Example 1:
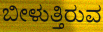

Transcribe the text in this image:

ಬೀಳುತ್ತಿರುವ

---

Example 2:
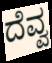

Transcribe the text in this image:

ದೆವ್ವ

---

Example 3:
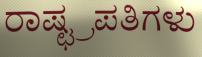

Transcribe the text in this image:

ರಾಷ್ಟ್ರಪತಿಗಳು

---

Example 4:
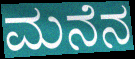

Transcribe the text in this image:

ಮನೆನ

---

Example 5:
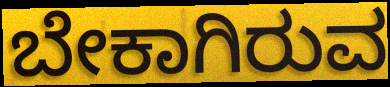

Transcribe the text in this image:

ಬೇಕಾಗಿರುವ